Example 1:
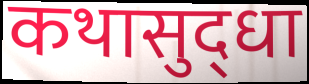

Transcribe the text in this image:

कथासुद्धा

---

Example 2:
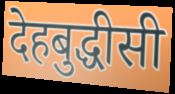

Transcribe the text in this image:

देहबुद्धीसी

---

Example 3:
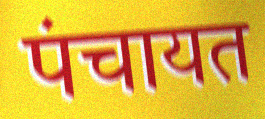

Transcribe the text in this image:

पंचायत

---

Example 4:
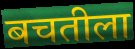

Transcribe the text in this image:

बचतीला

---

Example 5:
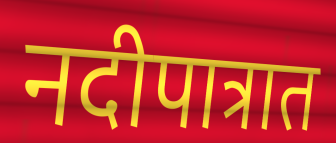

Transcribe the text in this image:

नदीपात्रात